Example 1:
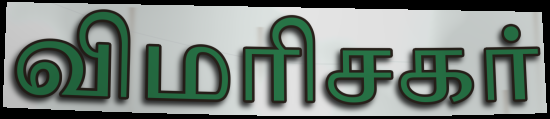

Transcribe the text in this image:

விமரிசகர்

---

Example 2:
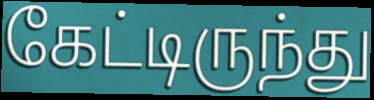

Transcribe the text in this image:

கேட்டிருந்து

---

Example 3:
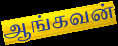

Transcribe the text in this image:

ஆங்கவன்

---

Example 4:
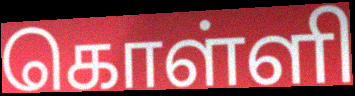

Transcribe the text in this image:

கொள்ளி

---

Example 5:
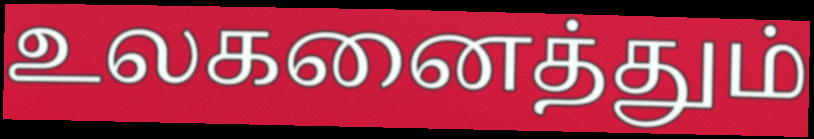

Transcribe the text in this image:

உலகனைத்தும்